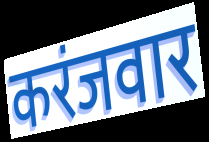
करंजवार